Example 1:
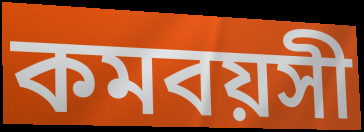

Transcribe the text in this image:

কমবয়সী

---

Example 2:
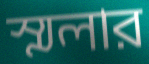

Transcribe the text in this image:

স্মলার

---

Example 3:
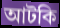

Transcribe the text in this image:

আটকি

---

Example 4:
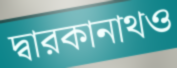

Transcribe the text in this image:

দ্বারকানাথও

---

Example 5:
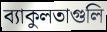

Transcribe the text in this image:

ব্যাকুলতাগুলি